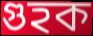
গুহক